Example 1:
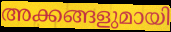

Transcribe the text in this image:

അക്കങ്ങളുമായി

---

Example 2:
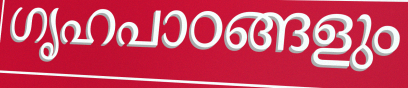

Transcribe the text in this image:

ഗൃഹപാഠങ്ങളും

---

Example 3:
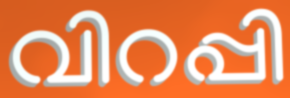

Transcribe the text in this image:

വിറപ്പി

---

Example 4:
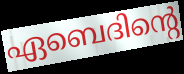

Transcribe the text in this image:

ഏബെദിന്റെ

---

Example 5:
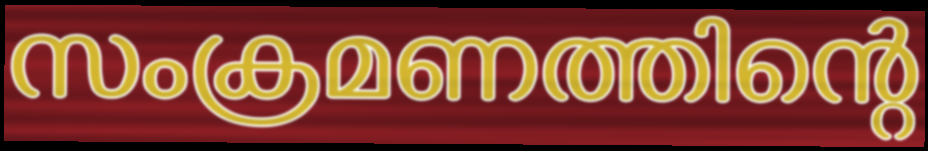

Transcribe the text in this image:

സംക്രമണത്തിന്റെ